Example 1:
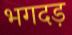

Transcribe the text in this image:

भगदड़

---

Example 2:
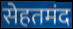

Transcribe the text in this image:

सेहतमंद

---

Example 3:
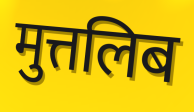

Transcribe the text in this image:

मुत्तलिब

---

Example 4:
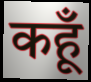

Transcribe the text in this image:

कहूँ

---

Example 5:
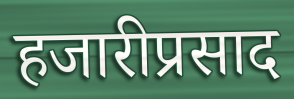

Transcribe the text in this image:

हजारीप्रसाद